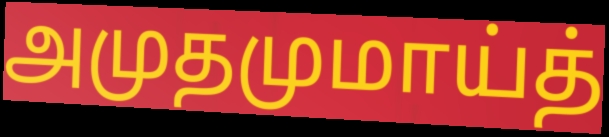
அமுதமுமாய்த்